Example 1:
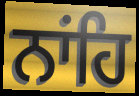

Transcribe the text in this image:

ਨਾਂਹਿ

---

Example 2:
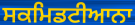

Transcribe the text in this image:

ਸਕਮਿਡਟੀਆਨਾ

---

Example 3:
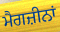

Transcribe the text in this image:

ਮੈਗਜ਼ੀਨਾਂ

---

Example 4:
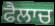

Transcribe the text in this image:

ਫੈਲਾਚ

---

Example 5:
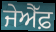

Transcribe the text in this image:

ਜੇਐੱਫ਼